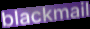
blackmail